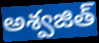
అశ్వజిత్